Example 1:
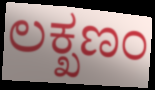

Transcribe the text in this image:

ಲಕ್ಖಣಂ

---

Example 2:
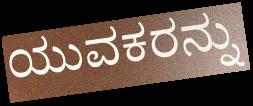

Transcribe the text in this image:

ಯುವಕರನ್ನು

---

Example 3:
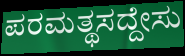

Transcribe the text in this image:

ಪರಮತ್ಥಸದ್ದೇಸು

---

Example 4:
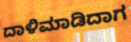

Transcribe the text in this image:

ದಾಳಿಮಾಡಿದಾಗ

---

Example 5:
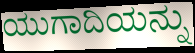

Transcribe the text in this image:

ಯುಗಾದಿಯನ್ನು